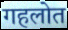
गहलोत